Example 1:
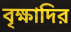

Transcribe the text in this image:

বৃক্ষাদির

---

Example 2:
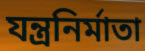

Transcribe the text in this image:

যন্ত্রনির্মাতা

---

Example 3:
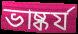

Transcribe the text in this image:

ভাষ্কর্য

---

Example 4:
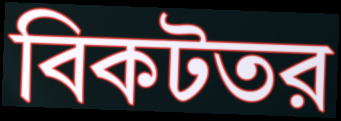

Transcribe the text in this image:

বিকটতর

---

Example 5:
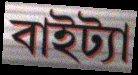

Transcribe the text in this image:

বাইট্যা